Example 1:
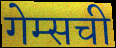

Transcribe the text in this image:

गेम्सची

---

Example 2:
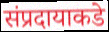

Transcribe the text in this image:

संप्रदायाकडे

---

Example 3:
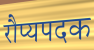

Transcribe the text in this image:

रौप्यपदक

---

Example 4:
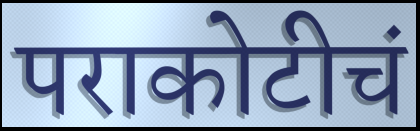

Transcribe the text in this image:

पराकोटीचं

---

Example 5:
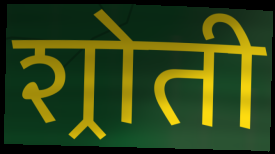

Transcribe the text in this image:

श्रोती